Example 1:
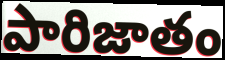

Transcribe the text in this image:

పారిజాతం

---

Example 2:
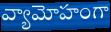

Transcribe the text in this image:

వ్యామోహంగా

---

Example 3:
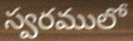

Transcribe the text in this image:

స్వరములో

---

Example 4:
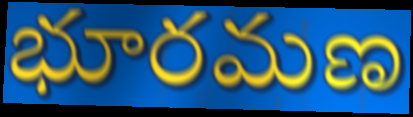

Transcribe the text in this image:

భూరమణ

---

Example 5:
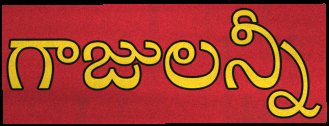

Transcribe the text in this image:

గాజులన్నీ